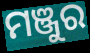
ମଞ୍ଜୁର